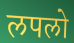
लपलो